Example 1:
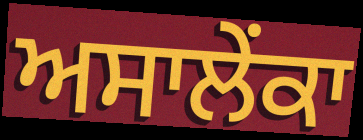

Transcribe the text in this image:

ਅਸਾਲੇਂਕਾ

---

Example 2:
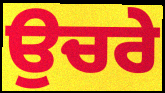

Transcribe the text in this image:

ਉਚਰੇ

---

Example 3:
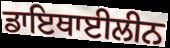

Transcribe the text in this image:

ਡਾਇਥਾਈਲੀਨ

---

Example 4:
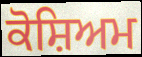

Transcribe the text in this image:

ਕੋਸ਼ਿਅਮ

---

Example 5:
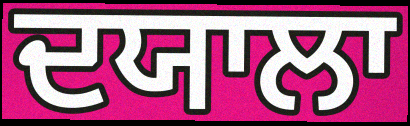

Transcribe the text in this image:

ਦਯਾਲਾ